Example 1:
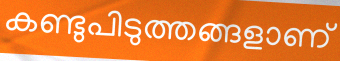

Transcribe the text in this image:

കണ്ടുപിടുത്തങ്ങളാണ്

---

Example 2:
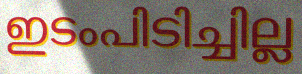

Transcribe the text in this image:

ഇടംപിടിച്ചില്ല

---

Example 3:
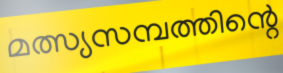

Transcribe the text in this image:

മത്സ്യസമ്പത്തിന്റെ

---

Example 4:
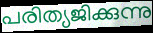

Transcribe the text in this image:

പരിത്യജിക്കുന്നു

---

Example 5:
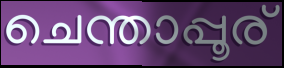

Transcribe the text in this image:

ചെന്താപ്പൂര്